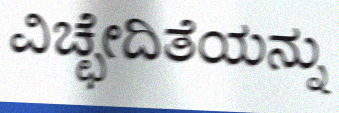
ವಿಚ್ಛೇದಿತೆಯನ್ನು